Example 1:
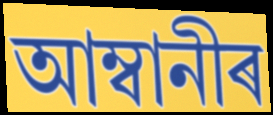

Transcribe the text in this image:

আম্বানীৰ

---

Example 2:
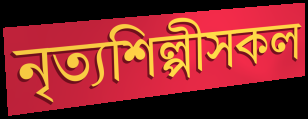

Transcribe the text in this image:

নৃত্যশিল্পীসকল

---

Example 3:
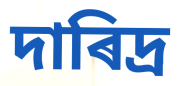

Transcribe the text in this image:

দাৰিদ্ৰ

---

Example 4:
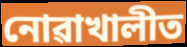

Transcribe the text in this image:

নোৱাখালীত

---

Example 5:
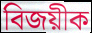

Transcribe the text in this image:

বিজয়ীক